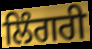
ਲਿੰਗਰੀ